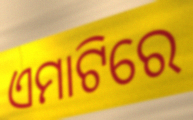
ଏମାଟିରେ